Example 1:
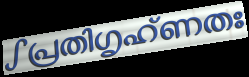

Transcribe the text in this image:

ഽപ്രതിഗൃഹ്ണതഃ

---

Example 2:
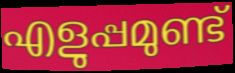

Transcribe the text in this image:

എളുപ്പമുണ്ട്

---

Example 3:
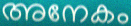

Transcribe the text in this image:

അനേകം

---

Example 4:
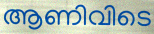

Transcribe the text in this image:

ആണിവിടെ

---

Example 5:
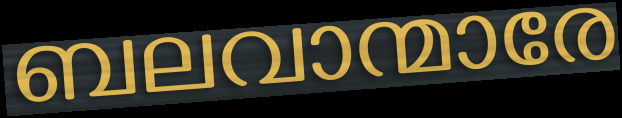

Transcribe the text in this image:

ബലവാന്മാരേ